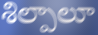
శిల్పాలూ